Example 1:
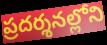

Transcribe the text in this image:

ప్రదర్శనల్లోని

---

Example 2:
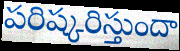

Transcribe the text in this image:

పరిష్కరిస్తుందా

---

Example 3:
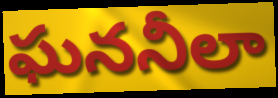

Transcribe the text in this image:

ఘననీలా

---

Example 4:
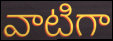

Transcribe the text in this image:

వాటిగా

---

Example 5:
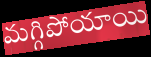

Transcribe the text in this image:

మగ్గిపోయాయి